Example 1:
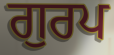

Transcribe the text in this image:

ਗੁਰਪ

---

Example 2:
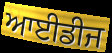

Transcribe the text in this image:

ਆਈਡੀਜ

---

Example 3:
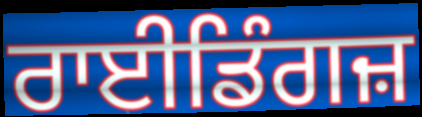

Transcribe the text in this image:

ਰਾਈਡਿੰਗਜ਼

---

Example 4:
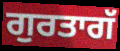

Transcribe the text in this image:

ਗੁਰਤਾਗੱ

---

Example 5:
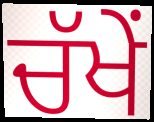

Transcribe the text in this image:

ਚੱਖੇਂ